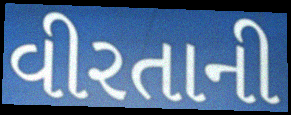
વીરતાની